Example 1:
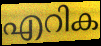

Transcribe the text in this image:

എറിക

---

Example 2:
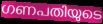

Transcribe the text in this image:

ഗണപതിയുടെ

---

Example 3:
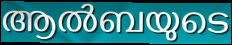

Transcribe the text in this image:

ആൽബയുടെ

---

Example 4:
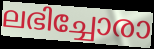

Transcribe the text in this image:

ലഭിച്ചോരാ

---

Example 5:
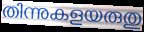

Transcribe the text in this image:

തിന്നുകളയരുതു